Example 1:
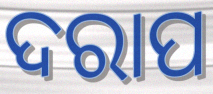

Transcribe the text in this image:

ଦରାପ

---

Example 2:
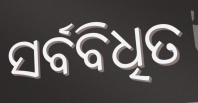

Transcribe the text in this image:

ସର୍ବବିଧିତ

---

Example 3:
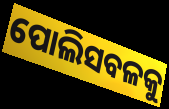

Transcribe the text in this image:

ପୋଲିସବଳକୁ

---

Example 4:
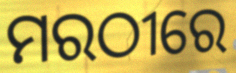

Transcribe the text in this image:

ମରଠୀରେ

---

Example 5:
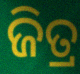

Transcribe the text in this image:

ଜିତ୍ର